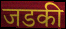
जडकी